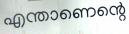
എന്താണെന്റെ